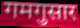
गमगुसार